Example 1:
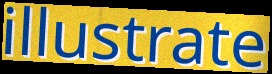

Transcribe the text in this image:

illustrate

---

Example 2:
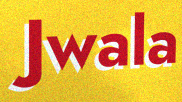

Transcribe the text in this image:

Jwala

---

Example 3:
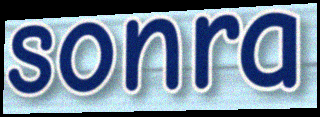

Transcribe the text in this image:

sonra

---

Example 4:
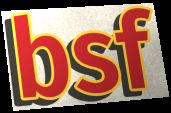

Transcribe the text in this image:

bsf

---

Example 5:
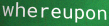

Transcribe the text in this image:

whereupon